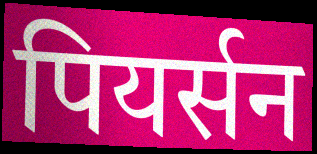
पियर्सन